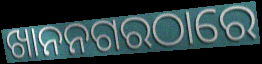
ଖାନନଗରଠାରେ